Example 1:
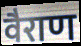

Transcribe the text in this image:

वैराण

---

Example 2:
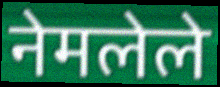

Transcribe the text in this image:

नेमलेले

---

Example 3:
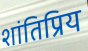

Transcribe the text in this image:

शांतिप्रिय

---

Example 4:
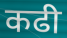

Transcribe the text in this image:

कढी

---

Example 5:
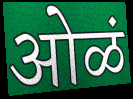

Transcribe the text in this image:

ओळं